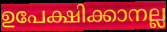
ഉപേക്ഷിക്കാനല്ല